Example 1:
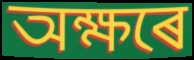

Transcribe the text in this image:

অক্ষৰে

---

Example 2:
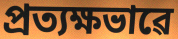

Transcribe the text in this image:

প্ৰত্যক্ষভাৱে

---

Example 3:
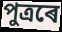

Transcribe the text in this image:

পুত্ৰৰে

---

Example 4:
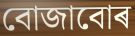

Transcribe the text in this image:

বোজাবোৰ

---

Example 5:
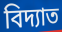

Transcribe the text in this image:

বিদ্যাত